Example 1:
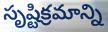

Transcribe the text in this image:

సృష్టిక్రమాన్ని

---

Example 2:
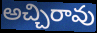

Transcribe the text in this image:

అచ్చిరావు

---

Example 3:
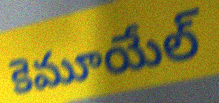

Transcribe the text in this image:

కెమూయేల్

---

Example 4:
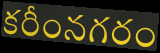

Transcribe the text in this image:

కరీంనగరం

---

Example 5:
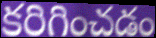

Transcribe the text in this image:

కరిగించడం